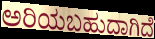
ಅರಿಯಬಹುದಾಗಿದೆ